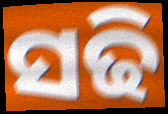
ସଢି